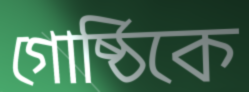
গোষ্ঠিকে